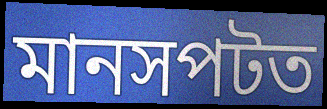
মানসপটত